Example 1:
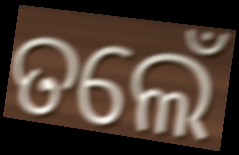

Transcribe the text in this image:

ତଲେଁ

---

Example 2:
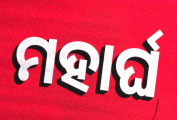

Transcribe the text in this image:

ମହାର୍ଘ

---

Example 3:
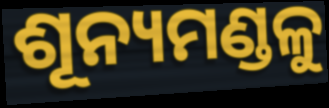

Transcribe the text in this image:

ଶୂନ୍ୟମଣ୍ଡଳୁ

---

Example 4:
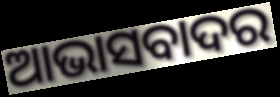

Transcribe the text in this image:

ଆଭାସବାଦର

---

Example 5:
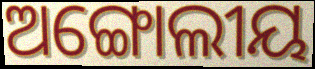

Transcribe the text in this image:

ଅଙ୍ଗୋଲୀୟ